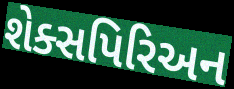
શેક્સપિરિઅન